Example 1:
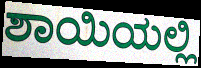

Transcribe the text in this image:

ಶಾಯಿಯಲ್ಲಿ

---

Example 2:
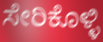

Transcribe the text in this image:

ಸೇರಿಕೊಳ್ಳಿ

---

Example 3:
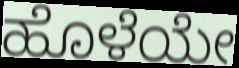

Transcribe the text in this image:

ಹೊಳೆಯೇ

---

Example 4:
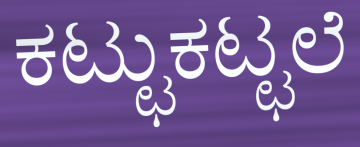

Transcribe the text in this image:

ಕಟ್ಟುಕಟ್ಟಲೆ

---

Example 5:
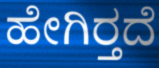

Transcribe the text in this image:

ಹೇಗಿರ್‍ತದೆ